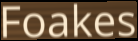
Foakes